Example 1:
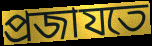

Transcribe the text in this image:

প্রজাযতে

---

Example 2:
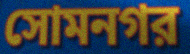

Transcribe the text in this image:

সোমনগর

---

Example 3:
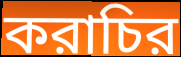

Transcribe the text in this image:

করাচির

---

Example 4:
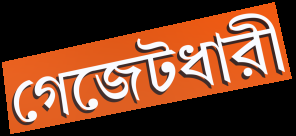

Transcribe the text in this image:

গেজেটধারী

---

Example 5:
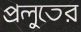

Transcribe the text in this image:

প্রলুতের